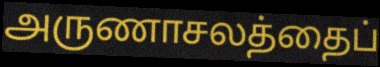
அருணாசலத்தைப்